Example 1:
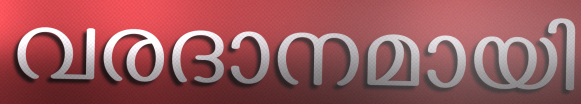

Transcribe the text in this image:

വരദാനമായി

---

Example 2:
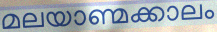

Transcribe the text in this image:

മലയാണ്മക്കാലം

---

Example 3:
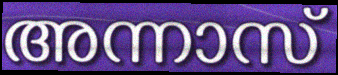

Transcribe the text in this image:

അന്നാസ്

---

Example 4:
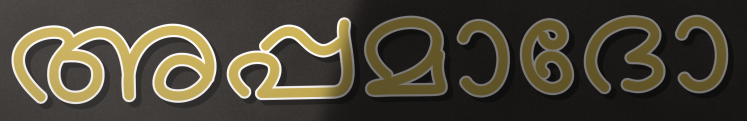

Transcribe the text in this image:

അപ്പമാദോ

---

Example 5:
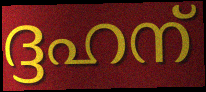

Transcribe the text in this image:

ദ്ദഹന്